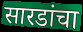
सारडांचा